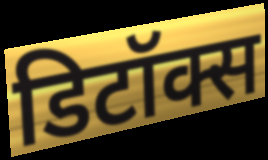
डिटॉक्स